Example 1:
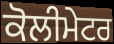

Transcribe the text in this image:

ਕੋਲੀਮੇਟਰ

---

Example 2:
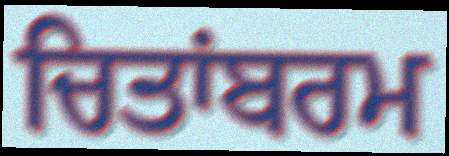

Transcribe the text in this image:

ਚਿਤਾਂਬਰਮ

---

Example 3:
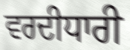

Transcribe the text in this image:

ਵਰਦੀਧਾਰੀ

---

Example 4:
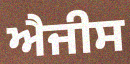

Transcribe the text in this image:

ਐਜੀਸ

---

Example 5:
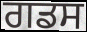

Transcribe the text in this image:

ਗਡਸ